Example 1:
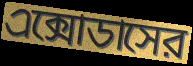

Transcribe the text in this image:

এক্সোডাসের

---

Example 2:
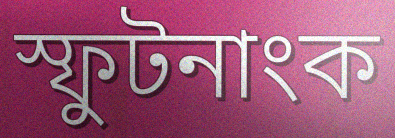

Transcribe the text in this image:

স্ফুটনাংক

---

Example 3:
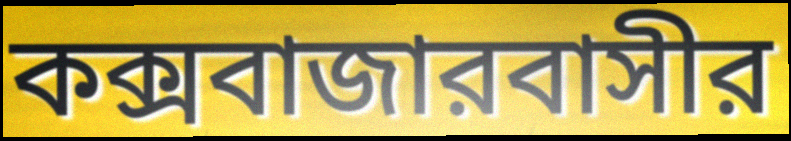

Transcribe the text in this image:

কক্সবাজারবাসীর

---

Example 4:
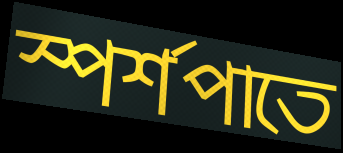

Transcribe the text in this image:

স্পর্শপাতে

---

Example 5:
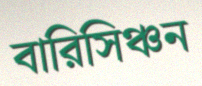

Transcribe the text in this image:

বারিসিঞ্চন